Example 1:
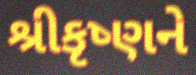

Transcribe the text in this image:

શ્રીકૃષ્ણને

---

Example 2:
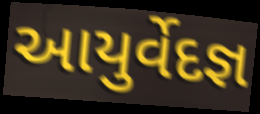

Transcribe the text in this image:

આયુર્વેદજ્ઞ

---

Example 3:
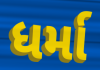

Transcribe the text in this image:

ધર્મા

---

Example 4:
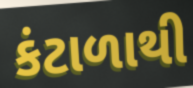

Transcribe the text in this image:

કંટાળાથી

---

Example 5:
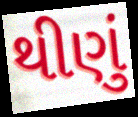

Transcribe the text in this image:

થીણું